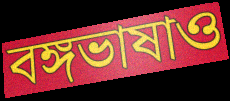
বঙ্গভাষাও